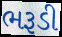
ભરૂડી